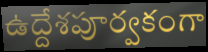
ఉద్దేశపూర్వకంగా